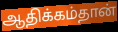
ஆதிக்கம்தான்